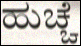
ಹುಚ್ಚೆ